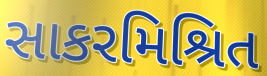
સાકરમિશ્રિત